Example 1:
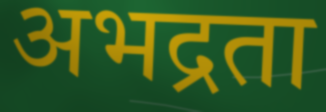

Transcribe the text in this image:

अभद्रता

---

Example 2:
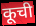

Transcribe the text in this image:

कूची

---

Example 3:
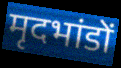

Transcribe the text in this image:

मृदभांडों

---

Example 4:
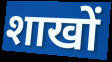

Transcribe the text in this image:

शाखों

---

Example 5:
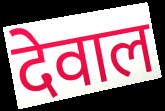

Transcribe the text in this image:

देवाल